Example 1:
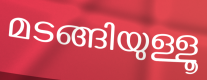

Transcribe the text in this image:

മടങ്ങിയുള്ളൂ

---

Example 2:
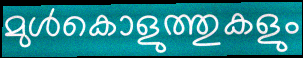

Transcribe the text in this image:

മുൾകൊളുത്തുകളും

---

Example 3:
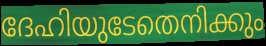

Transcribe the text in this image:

ദേഹിയുടേതെനിക്കും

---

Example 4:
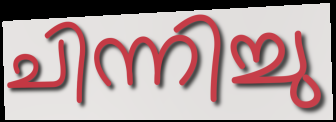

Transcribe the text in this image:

ചിന്നിച്ചു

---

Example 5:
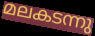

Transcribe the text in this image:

മലകടന്നു